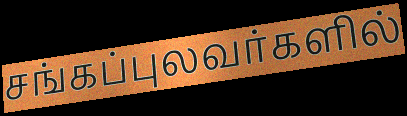
சங்கப்புலவர்களில்